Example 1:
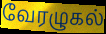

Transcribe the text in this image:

வேரழுகல்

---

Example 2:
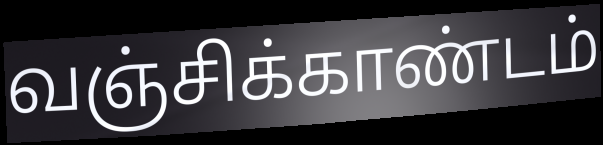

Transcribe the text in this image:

வஞ்சிக்காண்டம்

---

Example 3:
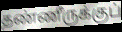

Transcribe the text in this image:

தண்ணீருக்குப்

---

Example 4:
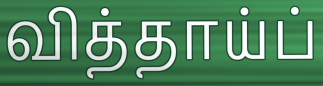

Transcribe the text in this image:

வித்தாய்ப்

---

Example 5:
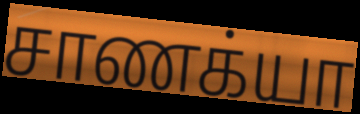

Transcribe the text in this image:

சாணக்யா